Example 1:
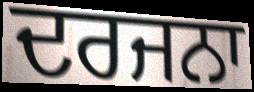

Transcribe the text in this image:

ਦਰਜਨਾ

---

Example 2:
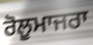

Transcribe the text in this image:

ਰੋਲੂਮਾਜਰਾ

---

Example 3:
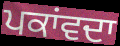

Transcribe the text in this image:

ਪਕਾਂਵਦਾ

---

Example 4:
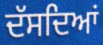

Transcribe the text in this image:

ਦੱਸਦਿਆਂ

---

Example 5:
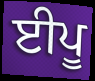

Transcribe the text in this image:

ਈਪੂ